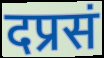
दप्रसं